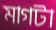
মাগটা